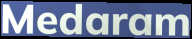
Medaram